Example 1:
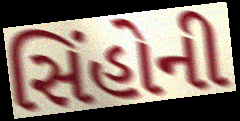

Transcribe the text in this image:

સિંહોની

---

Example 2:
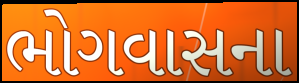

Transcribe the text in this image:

ભોગવાસના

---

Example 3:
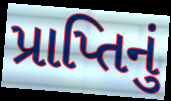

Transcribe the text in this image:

પ્રાપ્‍તિનું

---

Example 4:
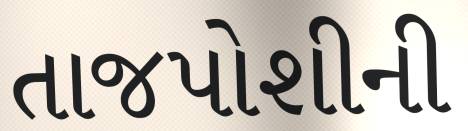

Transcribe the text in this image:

તાજપોશીની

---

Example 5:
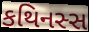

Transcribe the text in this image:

કથિનસ્સ